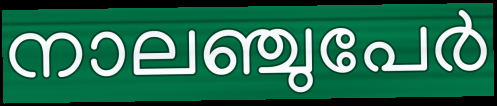
നാലഞ്ചുപേർ